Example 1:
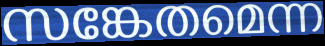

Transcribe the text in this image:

സങ്കേതമെന്ന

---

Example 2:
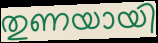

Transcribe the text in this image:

തുണയായി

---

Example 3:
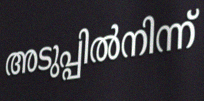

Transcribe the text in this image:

അടുപ്പിൽനിന്ന്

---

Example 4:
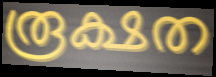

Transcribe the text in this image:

രൂക്ഷത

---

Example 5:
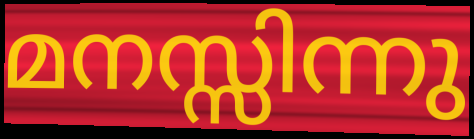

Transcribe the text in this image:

മനസ്സിന്നു